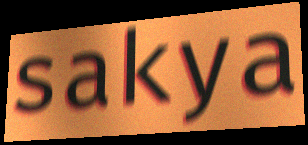
sakya